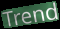
Trend